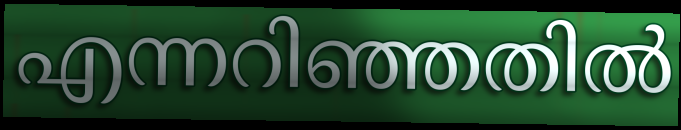
എന്നറിഞ്ഞതിൽ